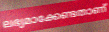
ലഭ്യമാക്കേണ്ടതാണ്